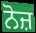
ਨੋਜ਼